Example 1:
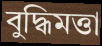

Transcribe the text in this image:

বুদ্ধিমত্তা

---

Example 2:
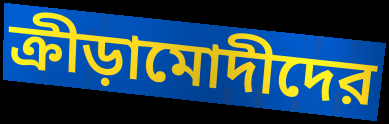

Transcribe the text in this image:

ক্রীড়ামোদীদের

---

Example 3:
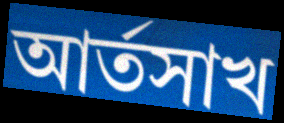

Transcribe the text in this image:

আর্তসাখ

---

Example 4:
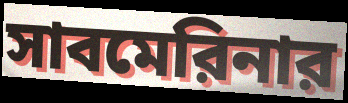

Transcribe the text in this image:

সাবমেরিনার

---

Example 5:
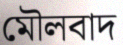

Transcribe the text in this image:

মৌলবাদ